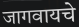
जागवायचे